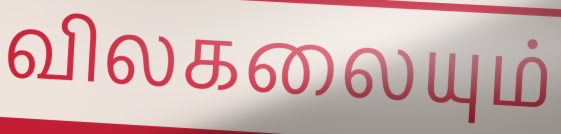
விலகலையும்